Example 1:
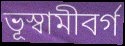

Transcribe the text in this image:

ভূস্বামীবর্গ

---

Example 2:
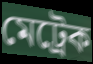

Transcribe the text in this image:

মেট্রেক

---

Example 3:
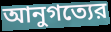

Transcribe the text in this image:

আনুগত্যের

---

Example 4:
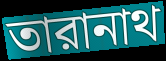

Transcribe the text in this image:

তারানাথ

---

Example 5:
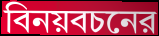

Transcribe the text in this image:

বিনয়বচনের